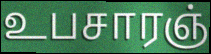
உபசாரஞ்